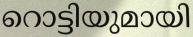
റൊട്ടിയുമായി